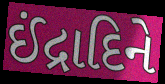
ઈંદ્રાદિને